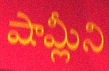
షామ్లీని